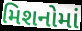
મિશનોમાં